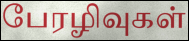
பேரழிவுகள்